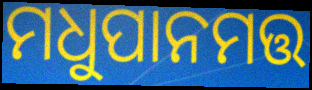
ମଧୁପାନମତ୍ତ